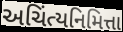
અચિંત્યનિમિત્તા